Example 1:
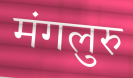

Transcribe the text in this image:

मंगलुरु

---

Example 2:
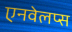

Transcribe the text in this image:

एनवेलप्स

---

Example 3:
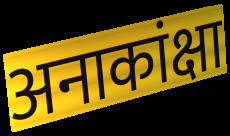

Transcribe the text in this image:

अनाकांक्षा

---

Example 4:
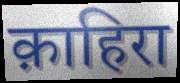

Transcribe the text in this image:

क़ाहिरा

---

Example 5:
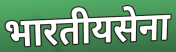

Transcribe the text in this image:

भारतीयसेना